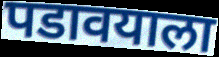
पडावयाला